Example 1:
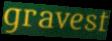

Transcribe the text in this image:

gravest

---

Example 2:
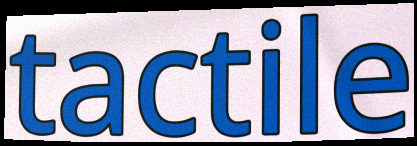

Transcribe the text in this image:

tactile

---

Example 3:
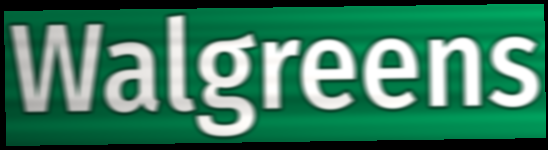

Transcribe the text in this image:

Walgreens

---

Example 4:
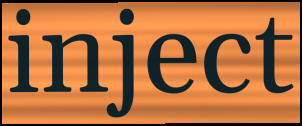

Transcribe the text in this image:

inject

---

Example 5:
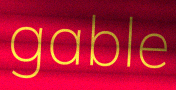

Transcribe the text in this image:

gable